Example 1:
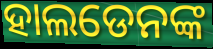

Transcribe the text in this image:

ହାଲଡେନଙ୍କ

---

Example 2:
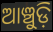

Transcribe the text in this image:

ଆଞ୍ଚୁଡ଼ି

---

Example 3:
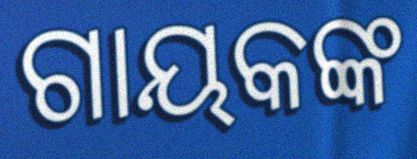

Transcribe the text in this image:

ଗାୟକଙ୍କ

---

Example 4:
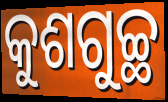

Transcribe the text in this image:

କୁଶଗୁଚ୍ଛ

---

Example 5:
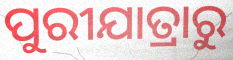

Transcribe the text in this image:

ପୁରୀଯାତ୍ରାରୁ